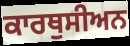
ਕਾਰਥੁਸੀਅਨ